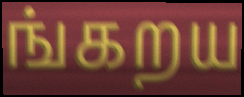
ங்கறய